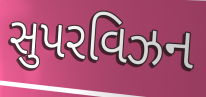
સુપરવિઝન